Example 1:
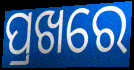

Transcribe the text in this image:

ପ୍ରଖରେ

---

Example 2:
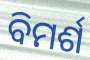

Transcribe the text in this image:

ବିମର୍ଶ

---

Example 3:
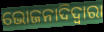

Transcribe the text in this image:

ଭୋଜନାଦିଦ୍ୱାରା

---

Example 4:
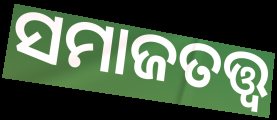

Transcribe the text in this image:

ସମାଜତତ୍ତ୍ୱ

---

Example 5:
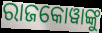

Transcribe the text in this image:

ରାଜକୋୱାଙ୍କୁ